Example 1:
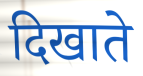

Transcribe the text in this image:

दिखाते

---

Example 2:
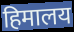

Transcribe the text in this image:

हिमालय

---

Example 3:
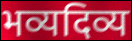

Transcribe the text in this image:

भव्यदिव्य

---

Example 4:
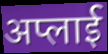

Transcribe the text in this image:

अप्लाई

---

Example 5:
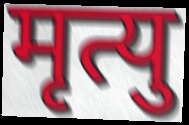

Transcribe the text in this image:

मृत्यु